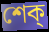
শেক্